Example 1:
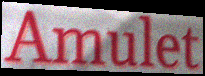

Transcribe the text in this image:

Amulet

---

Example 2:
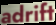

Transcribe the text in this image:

adrift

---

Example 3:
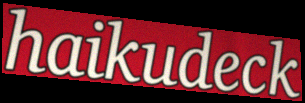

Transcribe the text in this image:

haikudeck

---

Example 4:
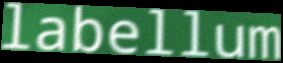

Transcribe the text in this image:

labellum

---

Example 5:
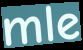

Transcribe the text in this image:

mle